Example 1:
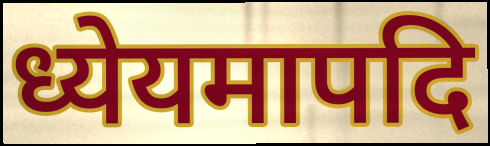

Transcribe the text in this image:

ध्येयमापदि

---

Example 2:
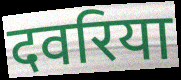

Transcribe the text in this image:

दवरिया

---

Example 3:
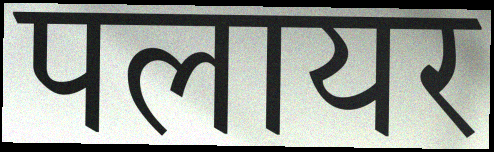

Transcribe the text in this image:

पलायर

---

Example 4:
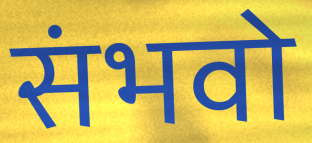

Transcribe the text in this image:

संभवो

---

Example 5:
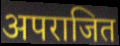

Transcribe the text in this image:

अपराजित